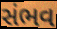
સંભવ